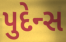
પુદેન્સ